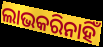
ଲାଭକରିନାହିଁ